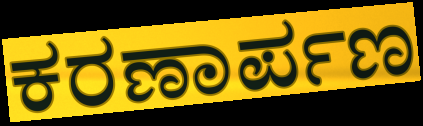
ಕರಣಾರ್ಪಣ